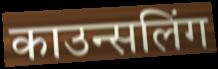
काउन्सलिंग